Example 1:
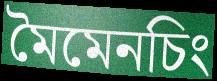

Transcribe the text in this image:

মৈমেনচিং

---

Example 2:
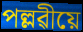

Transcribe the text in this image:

পল্লৱীয়ে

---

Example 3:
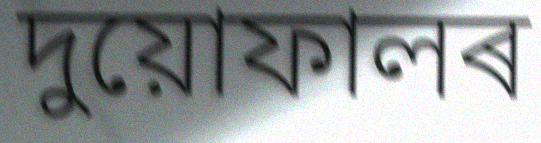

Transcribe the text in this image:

দুয়োফালৰ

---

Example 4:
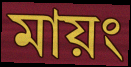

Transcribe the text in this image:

মায়ং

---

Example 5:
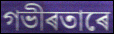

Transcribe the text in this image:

গভীৰতাৰে